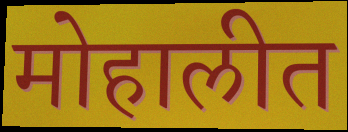
मोहालीत